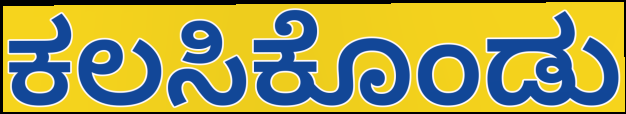
ಕಲಸಿಕೊಂಡು